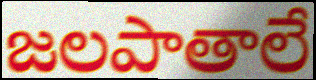
జలపాతాలే